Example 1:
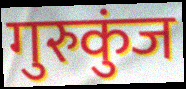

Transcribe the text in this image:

गुरुकुंज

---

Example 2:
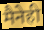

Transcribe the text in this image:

मैनेही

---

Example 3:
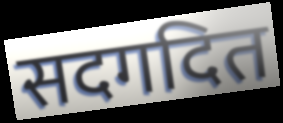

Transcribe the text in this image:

सदगदित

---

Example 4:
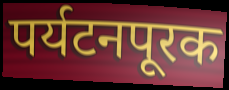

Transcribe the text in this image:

पर्यटनपूरक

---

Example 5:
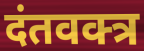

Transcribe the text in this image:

दंतवक्त्र